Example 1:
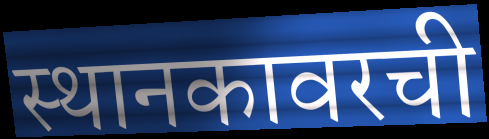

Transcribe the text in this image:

स्थानकावरची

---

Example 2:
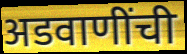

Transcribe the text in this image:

अडवाणींची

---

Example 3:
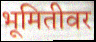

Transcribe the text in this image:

भूमितीवर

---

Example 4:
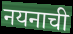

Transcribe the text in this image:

नयनाची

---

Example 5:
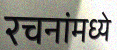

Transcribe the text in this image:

रचनांमध्ये